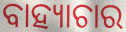
ବାହ୍ୟାଚାର